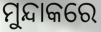
ମୁନ୍ଦାକରେ